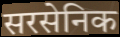
सरसेनिक